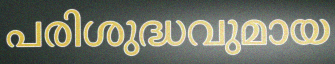
പരിശുദ്ധവുമായ